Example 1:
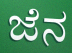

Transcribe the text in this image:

ಜೆನ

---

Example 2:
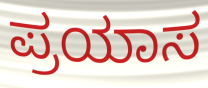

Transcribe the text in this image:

ಪ್ರಯಾಸ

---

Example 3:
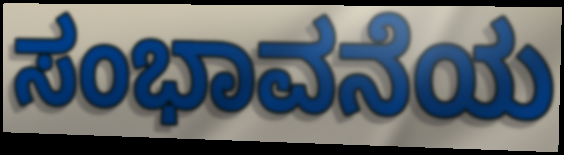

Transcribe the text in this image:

ಸಂಭಾವನೆಯ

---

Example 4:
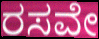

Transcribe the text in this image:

ರಸವೇ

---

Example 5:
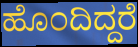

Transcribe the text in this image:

ಹೊಂದಿದ್ದರೆ